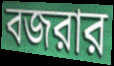
বজরার